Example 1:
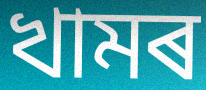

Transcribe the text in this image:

খামৰ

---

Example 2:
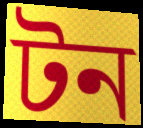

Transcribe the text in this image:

টন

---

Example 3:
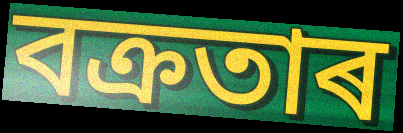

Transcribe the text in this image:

বক্ৰতাৰ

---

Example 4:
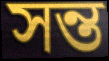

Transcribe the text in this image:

সন্ত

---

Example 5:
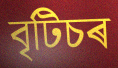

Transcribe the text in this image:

বৃটিচৰ